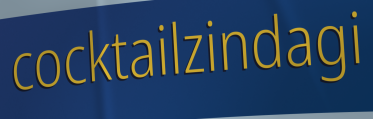
cocktailzindagi